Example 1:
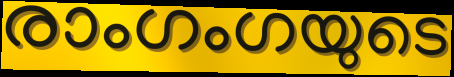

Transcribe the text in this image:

രാംഗംഗയുടെ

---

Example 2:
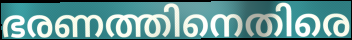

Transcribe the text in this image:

ഭരണത്തിനെതിരെ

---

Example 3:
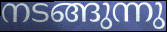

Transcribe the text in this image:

നടങ്ങുന്നു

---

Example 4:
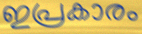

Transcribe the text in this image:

ഇപ്രകാരം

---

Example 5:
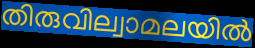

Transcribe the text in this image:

തിരുവില്വാമലയിൽ